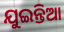
ଯୁଇନ୍ତିଆ